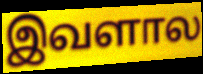
இவளால